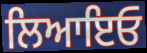
ਲਿਆਇਓ